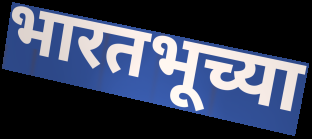
भारतभूच्या